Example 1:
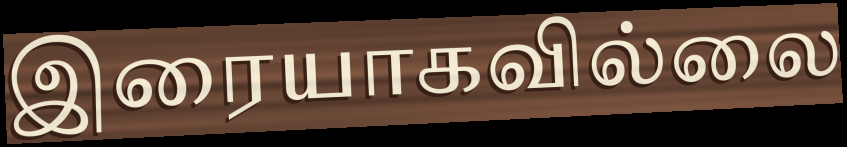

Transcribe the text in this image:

இரையாகவில்லை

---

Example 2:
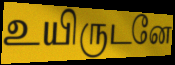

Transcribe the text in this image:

உயிருடனே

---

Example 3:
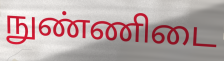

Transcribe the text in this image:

நுண்ணிடை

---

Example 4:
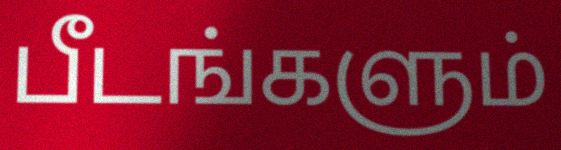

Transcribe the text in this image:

பீடங்களும்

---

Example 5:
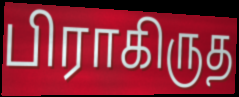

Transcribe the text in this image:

பிராகிருத